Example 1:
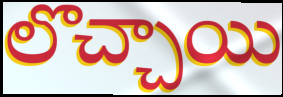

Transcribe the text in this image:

లొచ్చాయి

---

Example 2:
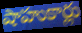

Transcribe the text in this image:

షాహుకార్లు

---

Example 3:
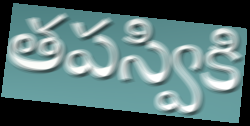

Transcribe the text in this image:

తపస్వికి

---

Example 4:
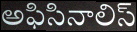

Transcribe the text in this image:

అఫిసినాలిస్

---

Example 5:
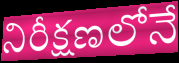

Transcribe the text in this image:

నిరీక్షణలోనే